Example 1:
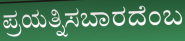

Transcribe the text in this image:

ಪ್ರಯತ್ನಿಸಬಾರದೆಂಬ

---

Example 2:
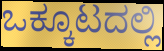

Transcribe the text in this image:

ಒಕ್ಕೂಟದಲ್ಲಿ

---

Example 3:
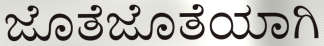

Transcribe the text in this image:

ಜೊತೆಜೊತೆಯಾಗಿ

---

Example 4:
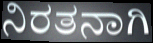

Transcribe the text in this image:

ನಿರತನಾಗಿ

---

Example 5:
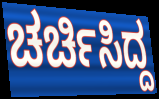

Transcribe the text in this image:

ಚರ್ಚಿಸಿದ್ದ